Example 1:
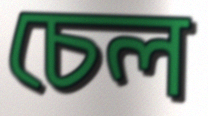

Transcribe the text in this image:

চেল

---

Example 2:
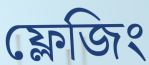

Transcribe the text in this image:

ফ্লেজিং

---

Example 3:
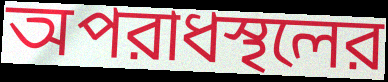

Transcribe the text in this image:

অপরাধস্থলের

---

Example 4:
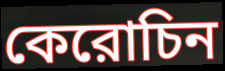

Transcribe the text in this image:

কেরোচিন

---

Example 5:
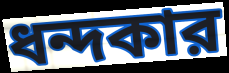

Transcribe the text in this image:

ধন্দকার